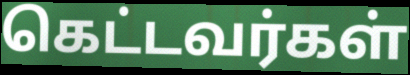
கெட்டவர்கள்